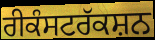
ਰੀਕੰਸਟਰੱਕਸ਼ਨ